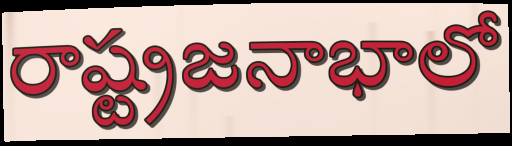
రాష్ట్రజనాభాలో